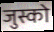
जुस्को